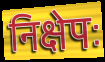
निक्षेपः